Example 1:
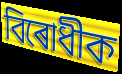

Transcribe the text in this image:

বিৰোধীক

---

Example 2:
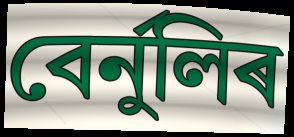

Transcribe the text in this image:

বেৰ্নুলিৰ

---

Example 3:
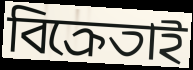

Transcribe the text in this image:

বিক্ৰেতাই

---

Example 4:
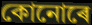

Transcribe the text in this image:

কোনোৰে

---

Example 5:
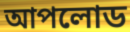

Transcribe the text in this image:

আপলোড